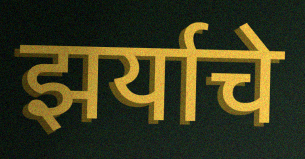
झर्याचे